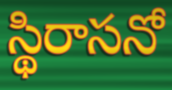
స్థిరాసనో